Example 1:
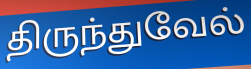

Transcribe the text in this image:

திருந்துவேல்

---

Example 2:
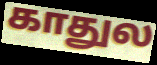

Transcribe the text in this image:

காதுல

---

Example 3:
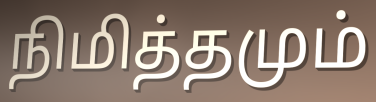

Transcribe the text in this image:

நிமித்தமும்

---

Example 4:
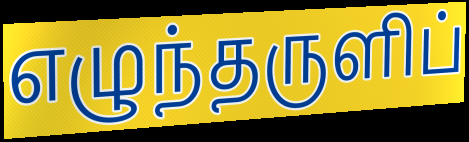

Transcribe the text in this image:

எழுந்தருளிப்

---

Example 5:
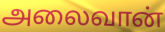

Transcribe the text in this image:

அலைவான்